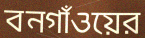
বনগাঁওয়ের